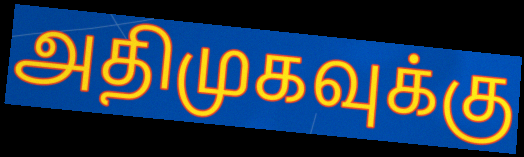
அதிமுகவுக்கு